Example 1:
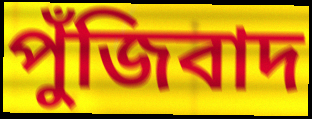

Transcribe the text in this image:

পুঁজিবাদ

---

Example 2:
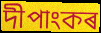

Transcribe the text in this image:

দীপাংকৰ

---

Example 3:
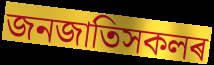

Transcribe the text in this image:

জনজাতিসকলৰ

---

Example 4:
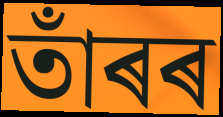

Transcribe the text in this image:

তাঁৰৰ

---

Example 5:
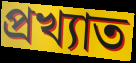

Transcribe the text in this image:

প্ৰখ্যাত